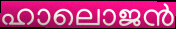
ഹാലൊജൻ